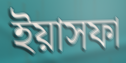
ইয়াসফা